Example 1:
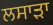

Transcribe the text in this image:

ਲਸਾੜਾ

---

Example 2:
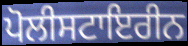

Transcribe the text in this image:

ਪੋਲੀਸਟਾਇਰੀਨ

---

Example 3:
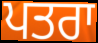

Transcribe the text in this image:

ਪਤਰਾ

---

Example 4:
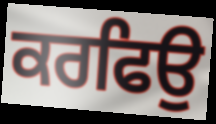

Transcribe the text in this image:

ਕਰਫਿਉ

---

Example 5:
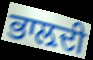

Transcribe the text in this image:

ਭਾਲ਼ਦੀ